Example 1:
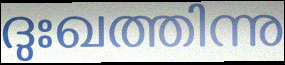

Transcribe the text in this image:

ദുഃഖത്തിന്നു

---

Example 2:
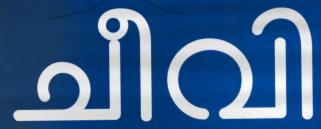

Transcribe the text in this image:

ചീവി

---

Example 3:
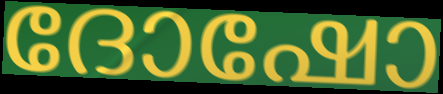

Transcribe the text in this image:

ദോഷോ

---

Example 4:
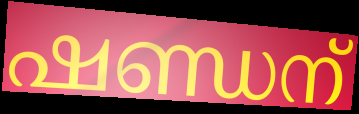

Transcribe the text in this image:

ഷണ്ഡന്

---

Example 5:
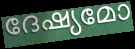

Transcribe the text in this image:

ദേഷ്യമോ